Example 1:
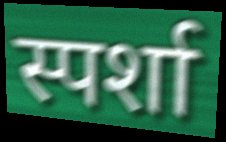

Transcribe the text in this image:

स्पर्शा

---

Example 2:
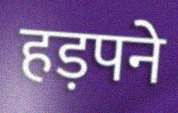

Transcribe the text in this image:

हड़पने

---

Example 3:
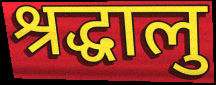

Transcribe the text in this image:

श्रद्धालु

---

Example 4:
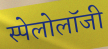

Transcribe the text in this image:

स्पेलोलॉजी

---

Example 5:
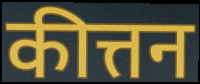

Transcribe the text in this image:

कीत्तन